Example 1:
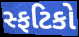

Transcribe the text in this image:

સ્ફટિકો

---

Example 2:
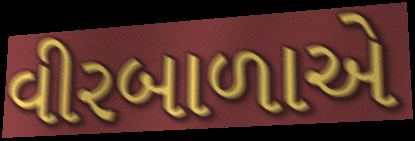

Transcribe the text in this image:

વીરબાળાએ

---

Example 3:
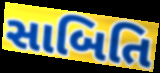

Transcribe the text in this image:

સાબિતિ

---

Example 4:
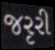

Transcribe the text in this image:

જરૃરી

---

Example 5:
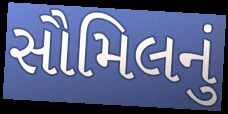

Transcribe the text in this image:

સૌમિલનું